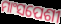
ମାଂସପେଶୀ